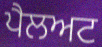
ਪੈਲਅਟ